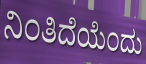
ನಿಂತಿದೆಯೆಂದು